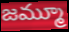
జమ్మూ